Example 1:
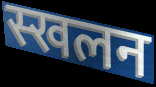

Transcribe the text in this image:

स्खलन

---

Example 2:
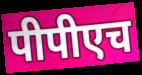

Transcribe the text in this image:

पीपीएच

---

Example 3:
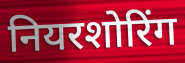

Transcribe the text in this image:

नियरशोरिंग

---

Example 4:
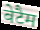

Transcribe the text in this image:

बेटैम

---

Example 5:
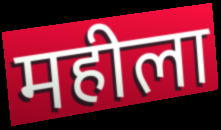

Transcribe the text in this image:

महीला